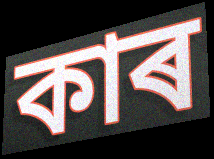
কাৰ